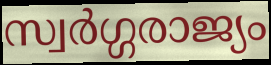
സ്വർഗ്ഗരാജ്യം